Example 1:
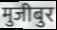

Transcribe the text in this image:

मुजीबुर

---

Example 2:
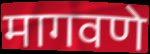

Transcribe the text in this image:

मागवणे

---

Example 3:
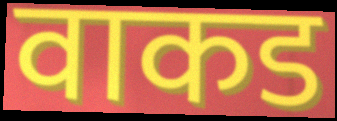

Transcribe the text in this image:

वाकड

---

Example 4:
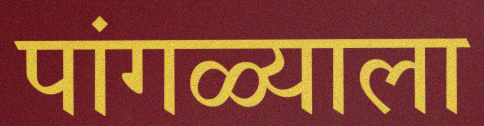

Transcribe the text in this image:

पांगळ्याला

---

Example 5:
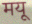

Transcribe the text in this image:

मयू